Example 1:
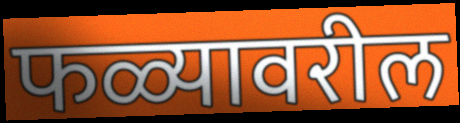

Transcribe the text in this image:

फळ्यावरील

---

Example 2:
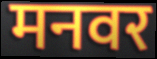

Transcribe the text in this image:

मनवर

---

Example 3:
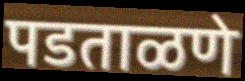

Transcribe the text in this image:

पडताळणे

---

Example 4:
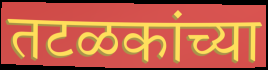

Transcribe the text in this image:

तटळकांच्या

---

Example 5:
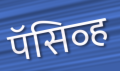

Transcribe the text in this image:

पॅसिव्ह